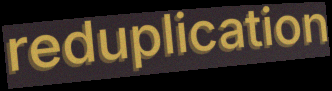
reduplication